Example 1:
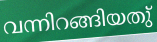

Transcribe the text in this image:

വന്നിറങ്ങിയതു്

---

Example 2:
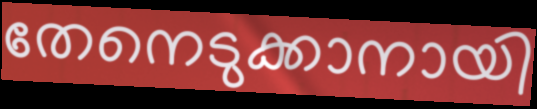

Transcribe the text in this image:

തേനെടുക്കാനായി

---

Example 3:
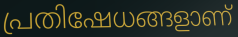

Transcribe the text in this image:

പ്രതിഷേധങ്ങളാണ്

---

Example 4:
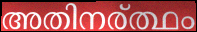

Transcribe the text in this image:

അതിനര്ത്ഥം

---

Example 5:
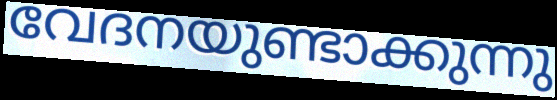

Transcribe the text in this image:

വേദനയുണ്ടാക്കുന്നു